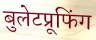
बुलेटप्रूफिंग